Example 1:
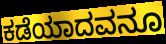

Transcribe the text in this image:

ಕಡೆಯಾದವನೂ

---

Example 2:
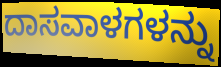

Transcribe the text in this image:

ದಾಸವಾಳಗಳನ್ನು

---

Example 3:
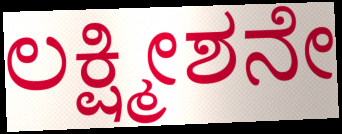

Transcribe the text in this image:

ಲಕ್ಷ್ಮೀಶನೇ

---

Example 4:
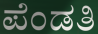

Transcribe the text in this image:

ಪೆಂಡತಿ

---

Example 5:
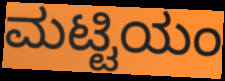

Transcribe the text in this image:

ಮಟ್ಟಿಯಂ